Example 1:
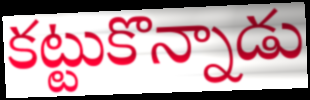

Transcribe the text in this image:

కట్టుకొన్నాడు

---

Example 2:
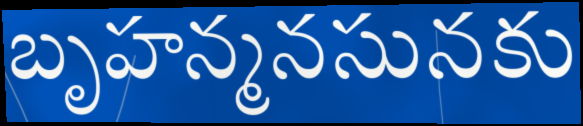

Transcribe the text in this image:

బృహన్మనసునకు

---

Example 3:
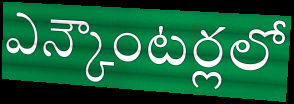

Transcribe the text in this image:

ఎన్కౌంటర్లలో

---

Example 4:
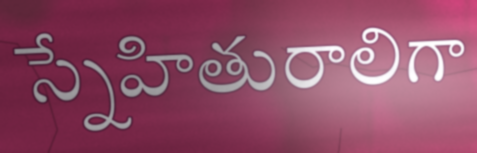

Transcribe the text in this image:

స్నేహితురాలిగా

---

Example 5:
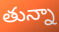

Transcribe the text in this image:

తున్నా